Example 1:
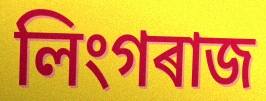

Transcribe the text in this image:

লিংগৰাজ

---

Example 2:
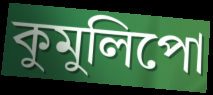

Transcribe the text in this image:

কুমুলিপো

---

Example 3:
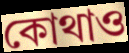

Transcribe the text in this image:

কোথাও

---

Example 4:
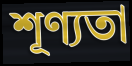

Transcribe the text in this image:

শূণ্যতা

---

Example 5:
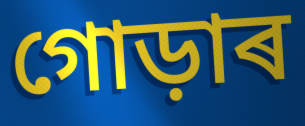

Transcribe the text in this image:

গোড়াৰ